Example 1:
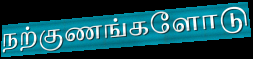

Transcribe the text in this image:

நற்குணங்களோடு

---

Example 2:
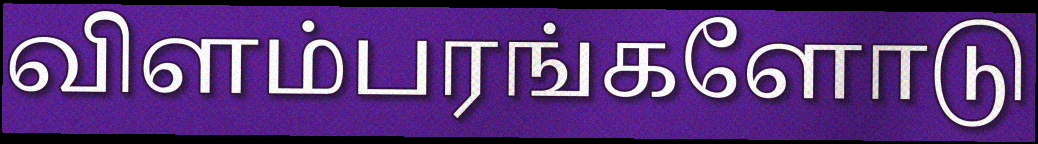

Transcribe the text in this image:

விளம்பரங்களோடு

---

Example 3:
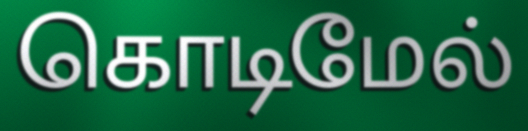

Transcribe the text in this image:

கொடிமேல்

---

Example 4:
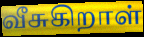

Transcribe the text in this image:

வீசுகிறாள்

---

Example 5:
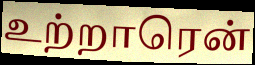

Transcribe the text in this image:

உற்றாரென்